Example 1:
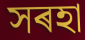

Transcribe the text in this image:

সৰহা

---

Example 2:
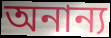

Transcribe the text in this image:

অনান্য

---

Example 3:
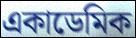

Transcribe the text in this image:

একাডেমিক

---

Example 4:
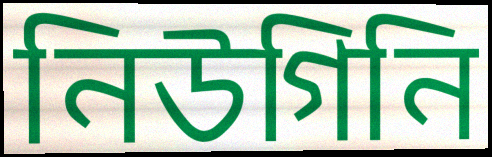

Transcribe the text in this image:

নিউগিনি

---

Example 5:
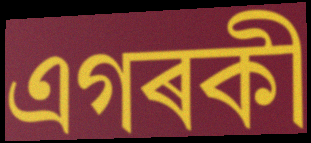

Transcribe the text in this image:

এগৰকী